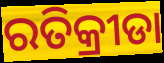
ରତିକ୍ରୀଡା